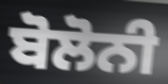
ਬੋਲੋਨੀ